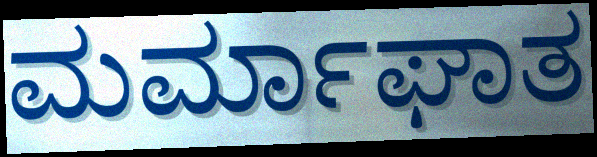
ಮರ್ಮಾಘಾತ